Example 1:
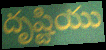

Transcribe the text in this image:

దృష్టియు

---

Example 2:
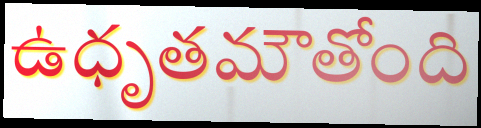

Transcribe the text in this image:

ఉధృతమౌతోంది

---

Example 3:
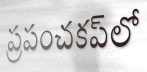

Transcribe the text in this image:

ప్రపంచకప్‌లో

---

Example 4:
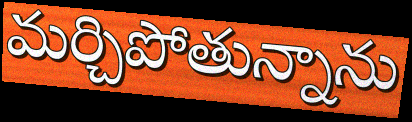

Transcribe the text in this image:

మర్చిపోతున్నాను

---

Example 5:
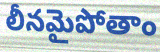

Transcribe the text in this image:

లీనమైపోతాం